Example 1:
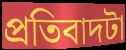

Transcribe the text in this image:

প্রতিবাদটা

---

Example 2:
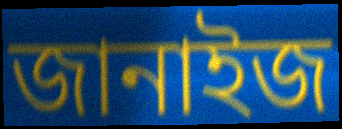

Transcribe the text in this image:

জানাইজ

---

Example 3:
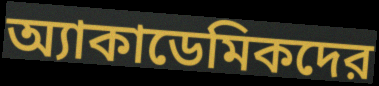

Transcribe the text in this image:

অ্যাকাডেমিকদের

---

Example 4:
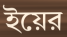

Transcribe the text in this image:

ইয়ের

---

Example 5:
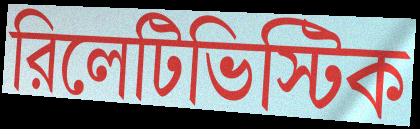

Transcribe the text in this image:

রিলেটিভিস্টিক